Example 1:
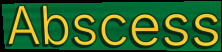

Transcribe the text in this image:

Abscess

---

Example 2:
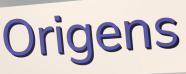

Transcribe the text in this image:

Origens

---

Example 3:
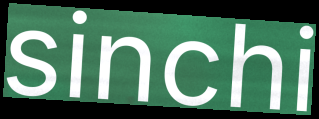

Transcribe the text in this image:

sinchi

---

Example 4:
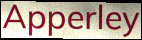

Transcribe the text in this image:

Apperley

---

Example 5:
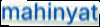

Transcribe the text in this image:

mahinyat